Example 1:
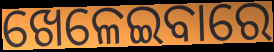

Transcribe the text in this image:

ଖେଳେଇବାରେ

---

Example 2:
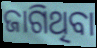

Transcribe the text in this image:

ଜାଗିଥିବା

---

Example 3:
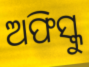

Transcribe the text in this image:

ଅଫିସ୍କୁ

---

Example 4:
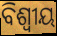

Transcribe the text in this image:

ବିଶ୍ଵୀୟ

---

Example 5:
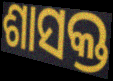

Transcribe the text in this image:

ଶାସକ୍ତ